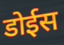
डोईस